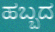
ಹಬ್ಬದ